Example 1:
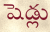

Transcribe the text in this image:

షెడ్లు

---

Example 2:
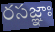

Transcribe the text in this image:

రసజ్ఞాః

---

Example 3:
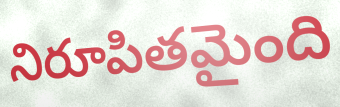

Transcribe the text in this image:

నిరూపితమైంది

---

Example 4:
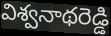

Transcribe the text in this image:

విశ్వనాథరెడ్డి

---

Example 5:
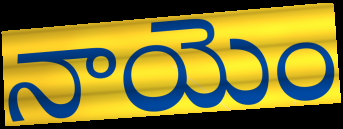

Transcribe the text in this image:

నాయెం